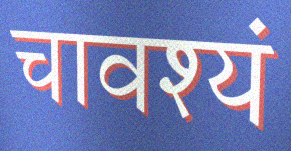
चावश्यं